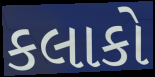
કલાકો